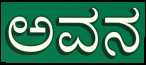
ಅವನ